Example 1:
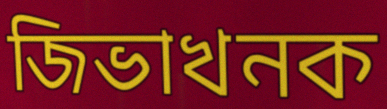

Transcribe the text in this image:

জিভাখনক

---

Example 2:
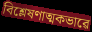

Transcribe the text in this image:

বিশ্লেষণাত্মকভাৱে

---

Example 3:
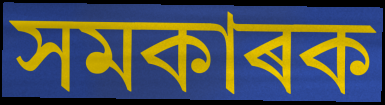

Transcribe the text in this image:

সমকাৰক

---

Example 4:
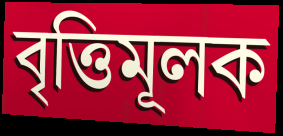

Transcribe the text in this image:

বৃত্তিমূলক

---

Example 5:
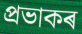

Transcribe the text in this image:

প্ৰভাকৰ